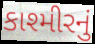
કાશ્મીરનું